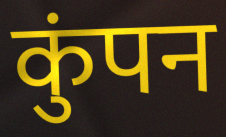
कुंपन